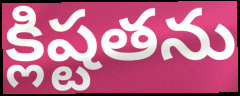
క్లిష్టతను